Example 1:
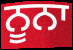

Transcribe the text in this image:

ਨੂਨਾ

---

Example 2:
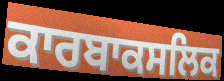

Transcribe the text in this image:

ਕਾਰਬਾਕਸਲਿਕ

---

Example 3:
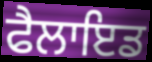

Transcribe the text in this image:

ਫੈਲਾਇਡ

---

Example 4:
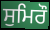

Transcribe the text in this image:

ਸੁਮਿਰੌ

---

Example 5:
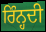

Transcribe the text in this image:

ਰਿੰਨ੍ਹਦੀ